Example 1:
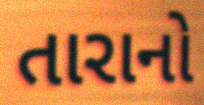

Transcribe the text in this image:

તારાનો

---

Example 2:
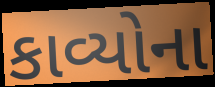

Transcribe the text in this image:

કાવ્યોના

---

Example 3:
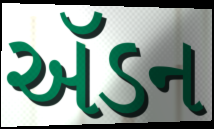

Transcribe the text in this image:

ઍડન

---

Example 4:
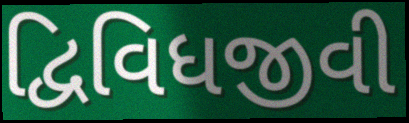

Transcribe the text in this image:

દ્વિવિધજીવી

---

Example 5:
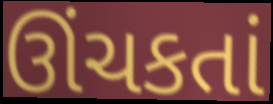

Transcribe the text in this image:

ઊંચકતાં